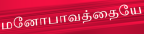
மனோபாவத்தையே